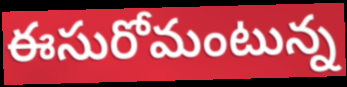
ఈసురోమంటున్న